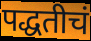
पद्धतीचं